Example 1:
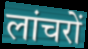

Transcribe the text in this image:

लांचरों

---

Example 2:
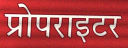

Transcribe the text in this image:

प्रोपराइटर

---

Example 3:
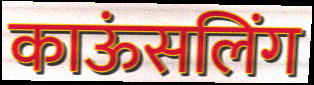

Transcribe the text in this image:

काऊंसलिंग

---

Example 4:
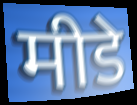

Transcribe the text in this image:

मीडे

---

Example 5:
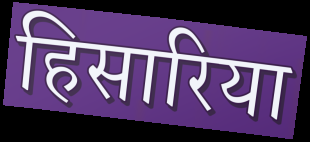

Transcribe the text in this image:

हिसारिया